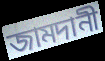
জামদানী